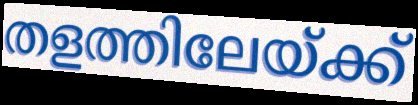
തളത്തിലേയ്ക്ക്